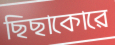
ছিছাকোৱে